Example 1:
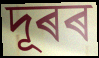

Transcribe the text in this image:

দূৰৰ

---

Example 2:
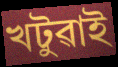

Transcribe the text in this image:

খটুৱাই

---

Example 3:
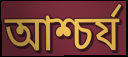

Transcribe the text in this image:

আশ্চৰ্য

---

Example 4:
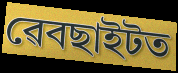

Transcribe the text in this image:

ৱেবছাইটত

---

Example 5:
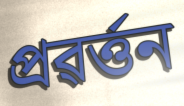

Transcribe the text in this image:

প্ৰৱৰ্ত্তন